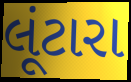
લૂંટારા